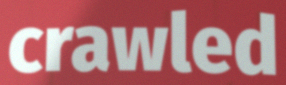
crawled